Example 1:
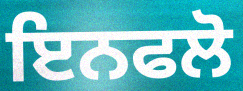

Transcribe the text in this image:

ਇਨਫਲੋ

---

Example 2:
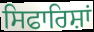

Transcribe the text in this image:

ਸਿਫਾਰਿਸ਼ਾਂ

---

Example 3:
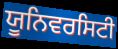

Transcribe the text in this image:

ਯੂਨਿਵਰਸਿਟੀ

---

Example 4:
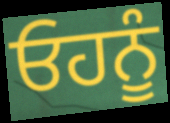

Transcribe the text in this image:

ਓਹਨੂੰ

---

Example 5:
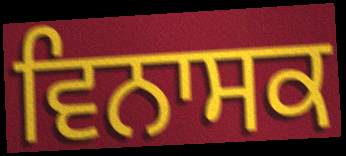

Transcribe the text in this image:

ਵਿਨਾਸਕ